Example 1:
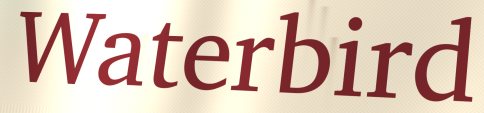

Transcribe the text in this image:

Waterbird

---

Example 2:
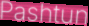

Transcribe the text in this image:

Pashtun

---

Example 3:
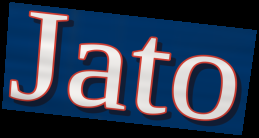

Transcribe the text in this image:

Jato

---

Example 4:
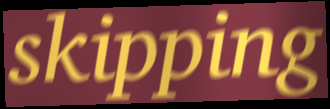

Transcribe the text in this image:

skipping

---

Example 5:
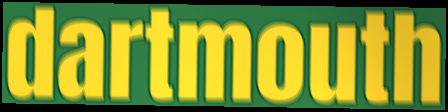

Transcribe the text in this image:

dartmouth